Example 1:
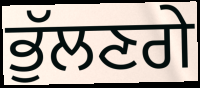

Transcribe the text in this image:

ਭੁੱਲਣਗੇ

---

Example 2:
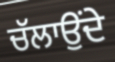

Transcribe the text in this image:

ਚੱਲਾਉਂਦੇ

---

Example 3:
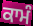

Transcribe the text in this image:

ਕਾਮੰ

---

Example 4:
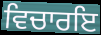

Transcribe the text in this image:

ਵਿਚਾਰਇ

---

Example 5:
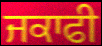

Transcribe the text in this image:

ਜਕਾਫੀ